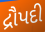
દ્રૌપદી